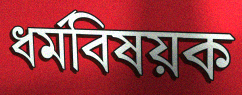
ধর্মবিষয়ক